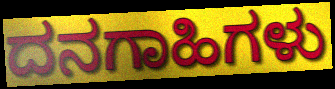
ದನಗಾಹಿಗಳು